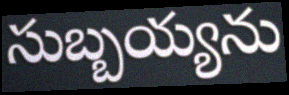
సుబ్బయ్యను